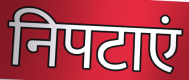
निपटाएं